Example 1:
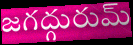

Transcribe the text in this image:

జగద్గురుమ్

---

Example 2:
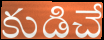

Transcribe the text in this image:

కుడిచే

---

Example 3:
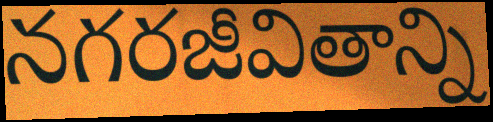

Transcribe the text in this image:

నగరజీవితాన్ని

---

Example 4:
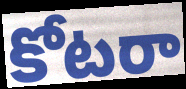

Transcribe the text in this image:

కోటరా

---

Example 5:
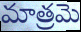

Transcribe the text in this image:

మాత్రమె